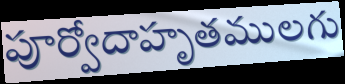
పూర్వోదాహృతములగు